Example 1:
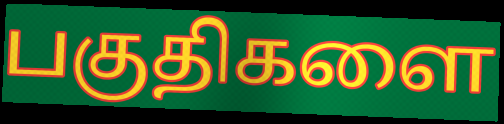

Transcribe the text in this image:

பகுதிகளை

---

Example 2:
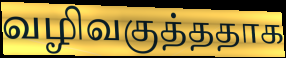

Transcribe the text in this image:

வழிவகுத்ததாக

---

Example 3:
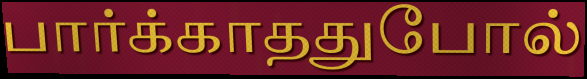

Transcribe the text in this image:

பார்க்காததுபோல்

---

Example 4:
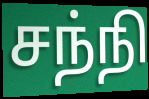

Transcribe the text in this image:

சந்நி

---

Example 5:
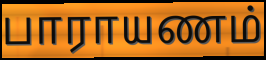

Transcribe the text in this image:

பாராயணம்